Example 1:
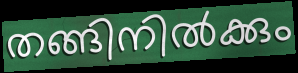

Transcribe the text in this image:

തങ്ങിനിൽക്കും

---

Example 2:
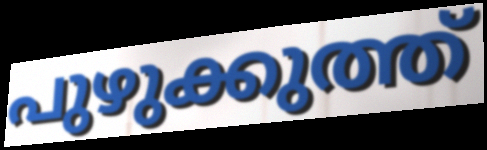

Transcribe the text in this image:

പുഴുക്കുത്ത്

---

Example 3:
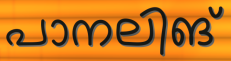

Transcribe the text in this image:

പാനലിങ്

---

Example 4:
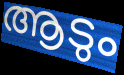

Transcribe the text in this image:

ആടും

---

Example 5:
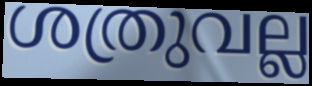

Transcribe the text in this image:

ശത്രുവല്ല